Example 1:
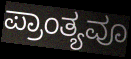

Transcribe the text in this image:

ಪ್ರಾಂತ್ಯವೂ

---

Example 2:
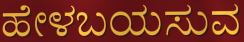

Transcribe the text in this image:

ಹೇಳಬಯಸುವ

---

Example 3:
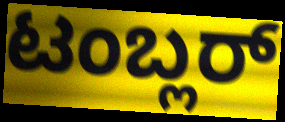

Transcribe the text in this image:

ಟಂಬ್ಲರ್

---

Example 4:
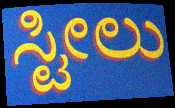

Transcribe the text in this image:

ಸ್ಟೀಲು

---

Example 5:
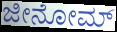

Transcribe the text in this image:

ಜೀನೋಮ್